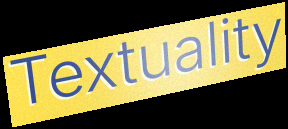
Textuality